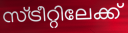
സ്ട്രീറ്റിലേക്ക്